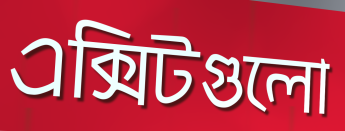
এক্সিটগুলো